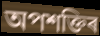
অপশক্তিৰ